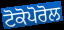
ਟੋਕੋਪੋਰੋਲ